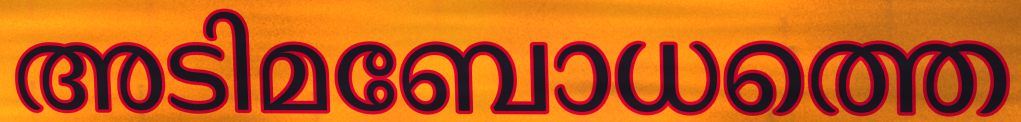
അടിമബോധത്തെ